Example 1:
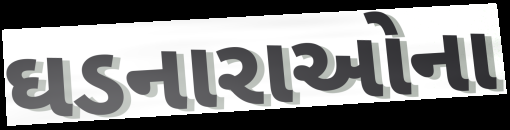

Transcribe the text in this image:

ઘડનારાઓના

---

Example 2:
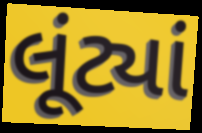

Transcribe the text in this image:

લૂંટ્યાં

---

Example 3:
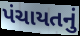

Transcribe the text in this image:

પંચાયતનું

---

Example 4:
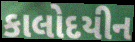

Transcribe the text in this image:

કાલોદયીન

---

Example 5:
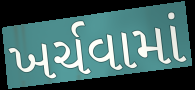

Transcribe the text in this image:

ખર્ચવામાં